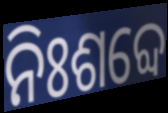
ନିଃଶବ୍ଦେ